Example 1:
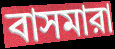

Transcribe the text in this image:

বাসমারা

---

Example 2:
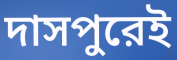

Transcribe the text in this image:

দাসপুরেই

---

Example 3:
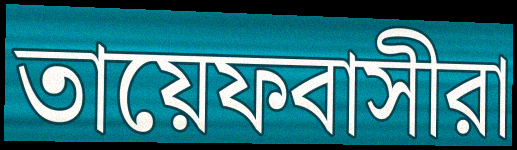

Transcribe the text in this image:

তায়েফবাসীরা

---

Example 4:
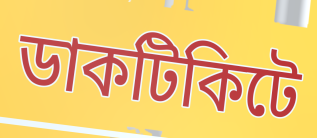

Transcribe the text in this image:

ডাকটিকিটে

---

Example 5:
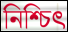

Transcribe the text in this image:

নিশ্চিৎ